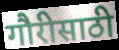
गौरीसाठी